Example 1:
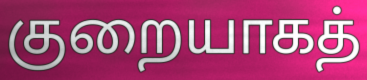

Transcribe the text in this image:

குறையாகத்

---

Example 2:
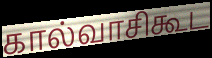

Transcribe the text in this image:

கால்வாசிகூட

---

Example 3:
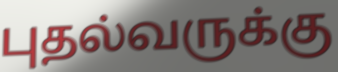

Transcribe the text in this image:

புதல்வருக்கு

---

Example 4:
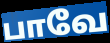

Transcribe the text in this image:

பாவே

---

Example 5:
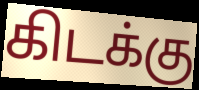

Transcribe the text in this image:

கிடக்கு